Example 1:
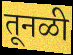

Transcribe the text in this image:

तूनळी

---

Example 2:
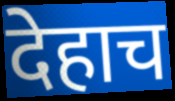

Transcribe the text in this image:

देहाच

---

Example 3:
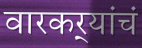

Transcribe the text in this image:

वारकर्यांचं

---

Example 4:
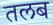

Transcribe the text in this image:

तलब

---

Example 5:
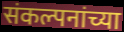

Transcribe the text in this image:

संकल्पनांच्या